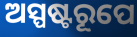
ଅସ୍ପଷ୍ଟରୂପେ